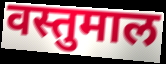
वस्तुमाल